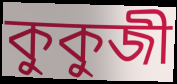
কুকুজী